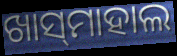
ଖାସ୍‌ମାହାଲ